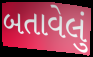
બતાવેલું